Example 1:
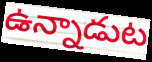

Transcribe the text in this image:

ఉన్నాడుట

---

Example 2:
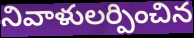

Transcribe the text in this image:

నివాళులర్పించిన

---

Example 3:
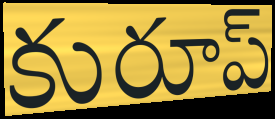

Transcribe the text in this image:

కురూప్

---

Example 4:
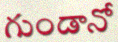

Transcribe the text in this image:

గుండానో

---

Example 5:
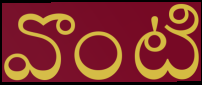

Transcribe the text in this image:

వొంటి